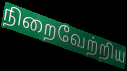
நிறைவேற்றிய